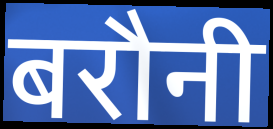
बरौनी